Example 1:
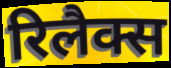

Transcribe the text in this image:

रिलैक्स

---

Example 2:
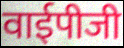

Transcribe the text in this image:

वाईपीजी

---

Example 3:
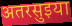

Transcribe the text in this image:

अतरसुइया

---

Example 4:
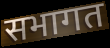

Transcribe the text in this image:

सभागत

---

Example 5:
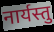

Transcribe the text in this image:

नार्यस्तु